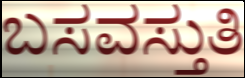
ಬಸವಸ್ತುತಿ